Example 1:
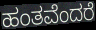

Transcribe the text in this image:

ಹಂತವೆಂದರೆ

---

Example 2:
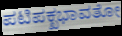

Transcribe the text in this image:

ಪಟಿಪಕ್ಖಭಾವತೋ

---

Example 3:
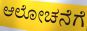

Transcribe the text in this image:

ಆಲೋಚನೆಗೆ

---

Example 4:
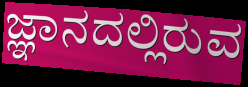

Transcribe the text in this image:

ಜ್ಞಾನದಲ್ಲಿರುವ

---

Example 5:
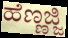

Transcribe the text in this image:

ಹೆಣ್ಣಜ್ಜಿ